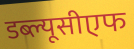
डब्ल्यूसीएफ